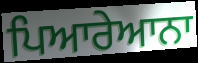
ਪਿਆਰੇਆਨਾ